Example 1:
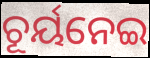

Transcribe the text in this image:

ଚୂର୍ୟନେଇ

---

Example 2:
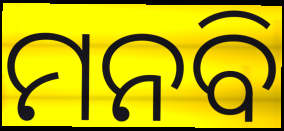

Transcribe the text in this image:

ମନବି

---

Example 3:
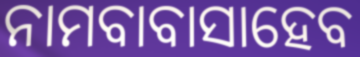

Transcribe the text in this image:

ନାମବାବାସାହେବ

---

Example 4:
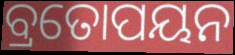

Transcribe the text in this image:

ବ୍ରତୋପୟନ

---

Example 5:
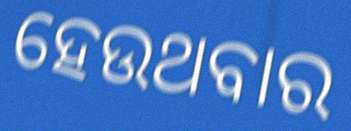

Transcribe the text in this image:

ହେଉଥବାର